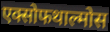
एक्सोफथाल्मोस